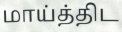
மாய்த்திட